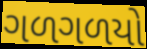
ગળગળયો